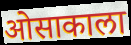
ओसाकाला